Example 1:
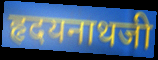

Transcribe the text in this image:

हृदयनाथजी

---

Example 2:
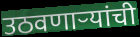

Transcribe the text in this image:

उठवणाऱ्यांची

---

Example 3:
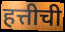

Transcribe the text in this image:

हत्तीची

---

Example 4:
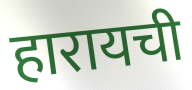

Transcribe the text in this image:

हारायची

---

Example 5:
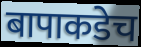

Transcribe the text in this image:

बापाकडेच